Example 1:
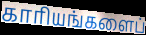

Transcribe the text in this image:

காரியங்களைப்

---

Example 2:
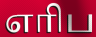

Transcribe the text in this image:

எரிப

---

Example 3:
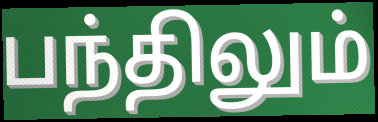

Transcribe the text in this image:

பந்திலும்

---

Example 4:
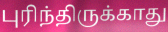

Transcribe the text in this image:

புரிந்திருக்காது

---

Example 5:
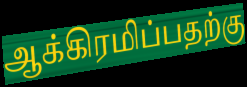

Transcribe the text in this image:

ஆக்கிரமிப்பதற்கு